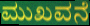
ಮುಖವನೆ